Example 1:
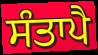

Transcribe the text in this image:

ਸੰਤਾਪੈ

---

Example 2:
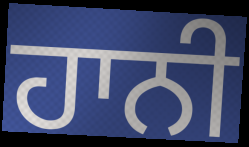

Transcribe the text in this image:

ਹਾਨੀ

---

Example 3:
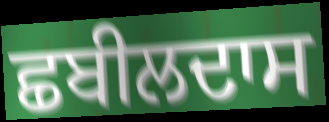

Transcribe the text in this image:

ਛਬੀਲਦਾਸ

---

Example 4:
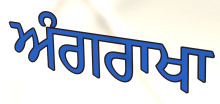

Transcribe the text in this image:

ਅੰਗਰਾਖਾ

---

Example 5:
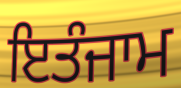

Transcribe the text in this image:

ਇਤੰਜਾਮ